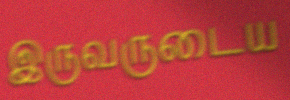
இருவருடைய